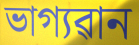
ভাগ্যৱান